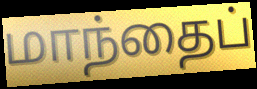
மாந்தைப்